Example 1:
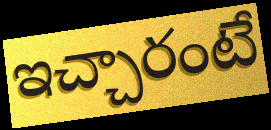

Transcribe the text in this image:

ఇచ్చారంటే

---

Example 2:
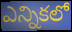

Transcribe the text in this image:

ఎన్నికలో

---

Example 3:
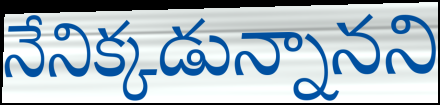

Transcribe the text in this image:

నేనిక్కడున్నానని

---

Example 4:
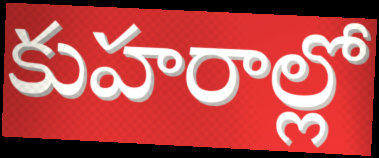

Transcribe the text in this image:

కుహరాల్లో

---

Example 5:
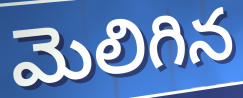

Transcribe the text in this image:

మెలిగిన